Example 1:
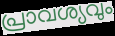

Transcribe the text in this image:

പ്രാവശ്യവും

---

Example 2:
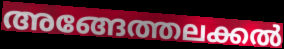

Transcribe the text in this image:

അങ്ങേത്തലക്കൽ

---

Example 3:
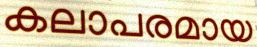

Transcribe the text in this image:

കലാപരമായ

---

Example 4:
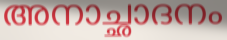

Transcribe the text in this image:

അനാച്ഛാദനം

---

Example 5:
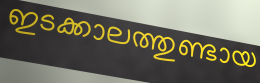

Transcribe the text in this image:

ഇടക്കാലത്തുണ്ടായ